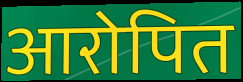
आरोपित